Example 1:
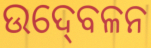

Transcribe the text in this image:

ଉଦ୍‍ବେଳନ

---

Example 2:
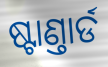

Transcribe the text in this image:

ଷ୍ଟାଣ୍ତାର୍ଡ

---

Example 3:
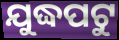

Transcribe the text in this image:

ଯୁଦ୍ଧପଟୁ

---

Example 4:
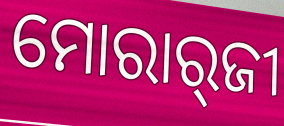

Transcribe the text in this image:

ମୋରାର୍‍ଜୀ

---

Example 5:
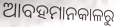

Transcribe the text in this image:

ଆବହମାନକାଳରୁ